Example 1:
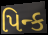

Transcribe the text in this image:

પિન્ક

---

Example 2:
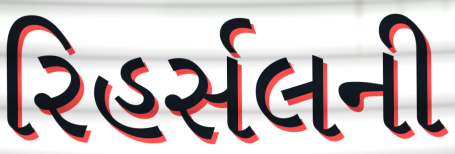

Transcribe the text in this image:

રિહર્સલની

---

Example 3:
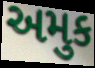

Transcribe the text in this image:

અમુક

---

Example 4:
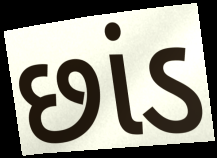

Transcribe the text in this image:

છાંડ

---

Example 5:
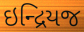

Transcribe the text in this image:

ઇન્દ્રિયજ